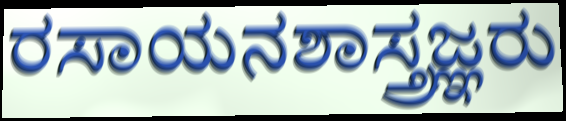
ರಸಾಯನಶಾಸ್ತ್ರಜ್ಞರು